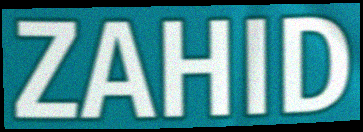
ZAHID